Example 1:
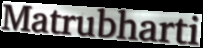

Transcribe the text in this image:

Matrubharti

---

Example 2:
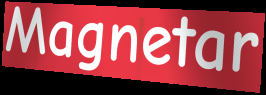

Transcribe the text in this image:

Magnetar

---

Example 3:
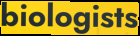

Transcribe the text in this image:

biologists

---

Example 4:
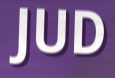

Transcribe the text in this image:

JUD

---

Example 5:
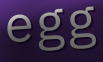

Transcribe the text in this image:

egg